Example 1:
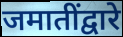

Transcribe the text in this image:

जमातींद्वारे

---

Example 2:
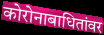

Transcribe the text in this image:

कोरोनाबाधितांवर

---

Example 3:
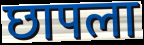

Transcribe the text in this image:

छापला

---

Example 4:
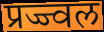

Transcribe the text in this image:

प्रज्ज्वल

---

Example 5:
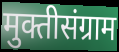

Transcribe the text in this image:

मुक्तीसंग्राम